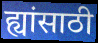
ह्यांसाठी